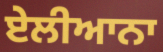
ਏਲੀਆਨਾ